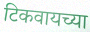
टिकवायच्या